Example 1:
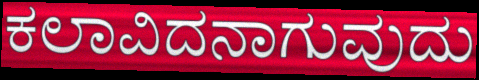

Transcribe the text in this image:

ಕಲಾವಿದನಾಗುವುದು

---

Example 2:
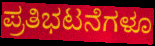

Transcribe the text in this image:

ಪ್ರತಿಭಟನೆಗಳೂ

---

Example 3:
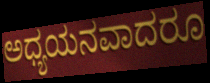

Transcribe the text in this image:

ಅಧ್ಯಯನವಾದರೂ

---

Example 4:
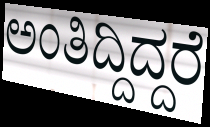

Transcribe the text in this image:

ಅಂತಿದ್ದಿದ್ದರೆ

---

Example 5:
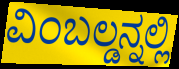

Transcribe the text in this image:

ವಿಂಬಲ್ಡನ್ನಲ್ಲಿ